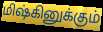
மிஷ்கினுக்கும்